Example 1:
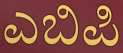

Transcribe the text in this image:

ಎಬಿಪಿ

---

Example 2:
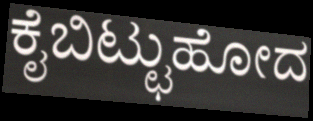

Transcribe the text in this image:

ಕೈಬಿಟ್ಟುಹೋದ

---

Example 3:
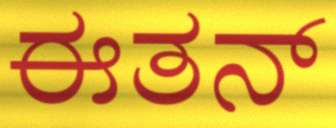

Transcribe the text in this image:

ಈತನ್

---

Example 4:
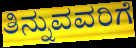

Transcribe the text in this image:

ತಿನ್ನುವವರಿಗೆ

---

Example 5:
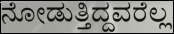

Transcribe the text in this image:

ನೋಡುತ್ತಿದ್ದವರೆಲ್ಲ